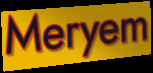
Meryem